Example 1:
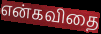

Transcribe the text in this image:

என்கவிதை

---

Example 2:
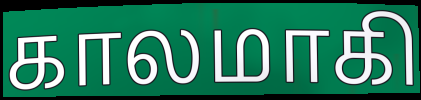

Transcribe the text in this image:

காலமாகி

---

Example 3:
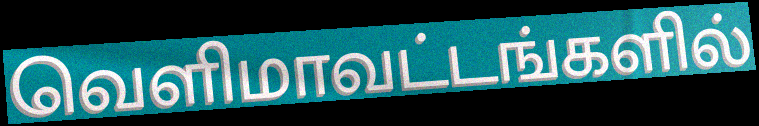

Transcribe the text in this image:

வெளிமாவட்டங்களில்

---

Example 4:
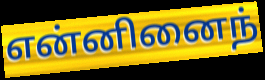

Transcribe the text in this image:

என்னினைந்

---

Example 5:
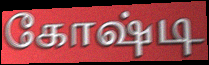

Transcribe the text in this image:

கோஷ்டி